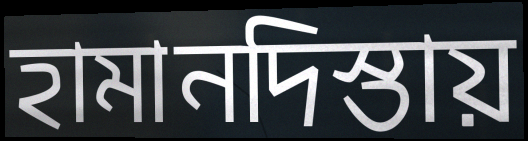
হামানদিস্তায়